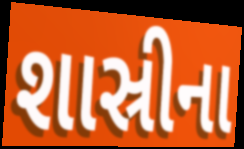
શાસ્રીના